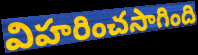
విహరించసాగింది